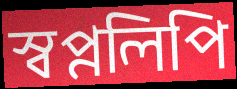
স্বপ্নলিপি